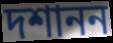
দশানন